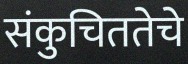
संकुचिततेचे